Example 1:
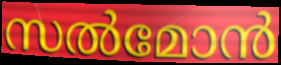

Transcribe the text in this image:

സൽമോൻ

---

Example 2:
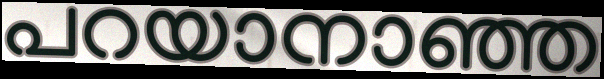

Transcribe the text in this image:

പറയാനാഞ്ഞ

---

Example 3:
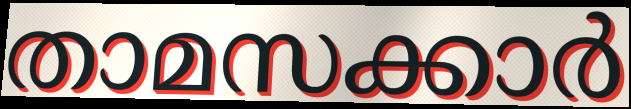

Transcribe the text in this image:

താമസക്കാർ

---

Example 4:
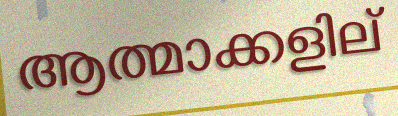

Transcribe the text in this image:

ആത്മാക്കളില്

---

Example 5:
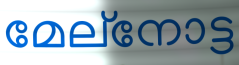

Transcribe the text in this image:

മേല്നോട്ട